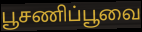
பூசணிப்பூவை